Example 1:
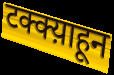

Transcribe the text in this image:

टक्क्य़ाहून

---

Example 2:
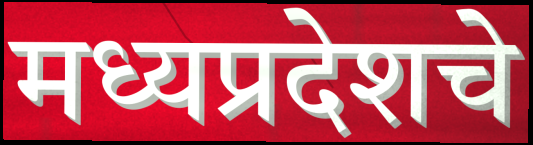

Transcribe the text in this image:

मध्यप्रदेशचे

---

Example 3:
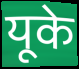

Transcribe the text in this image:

यूके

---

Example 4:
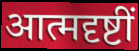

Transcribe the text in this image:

आत्मदृष्टीं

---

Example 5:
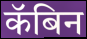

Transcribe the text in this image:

कॅबिन